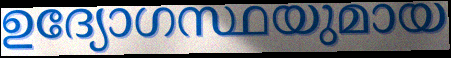
ഉദ്യോഗസ്ഥയുമായ